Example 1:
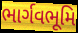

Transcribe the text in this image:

ભાર્ગવભૂમિ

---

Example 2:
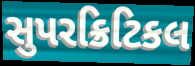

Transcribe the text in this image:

સુપરક્રિટિકલ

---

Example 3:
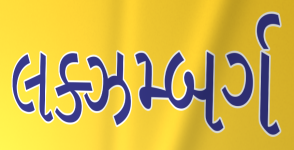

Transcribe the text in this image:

લક્ઝમ્બર્ગ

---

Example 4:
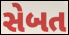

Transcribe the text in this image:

સેબત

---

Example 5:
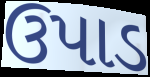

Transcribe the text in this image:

ઉપાડ